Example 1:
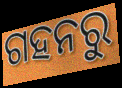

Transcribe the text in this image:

ଗହନରୁ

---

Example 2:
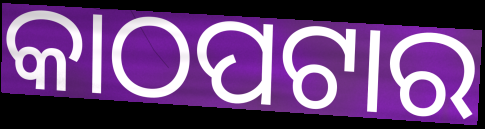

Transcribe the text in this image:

କାଠପଟାର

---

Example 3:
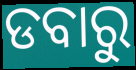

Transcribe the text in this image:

ଡବାରୁ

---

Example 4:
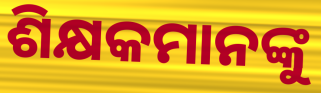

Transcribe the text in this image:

ଶିକ୍ଷକମାନଙ୍କୁ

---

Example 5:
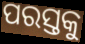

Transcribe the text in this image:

ପରସ୍ତକୁ